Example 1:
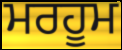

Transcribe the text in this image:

ਮਰਹੂਮ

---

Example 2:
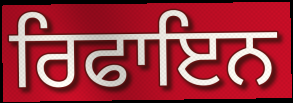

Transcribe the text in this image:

ਰਿਫਾਇਨ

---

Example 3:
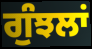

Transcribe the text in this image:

ਗੁੰਝਲਾਂ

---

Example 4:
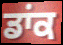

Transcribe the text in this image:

ਡਾਂਕ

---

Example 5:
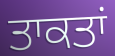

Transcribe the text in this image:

ਤਾਕਤਾਂ